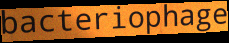
bacteriophage